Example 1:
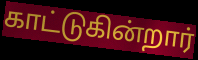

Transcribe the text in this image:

காட்டுகின்றார்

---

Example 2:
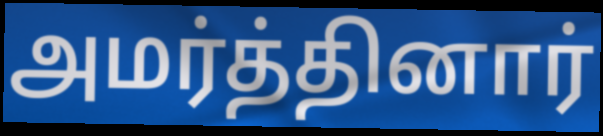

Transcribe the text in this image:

அமர்த்தினார்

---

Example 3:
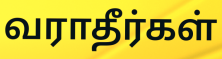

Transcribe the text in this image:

வராதீர்கள்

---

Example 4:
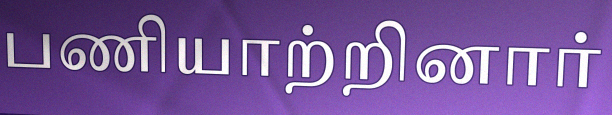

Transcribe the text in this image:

பணியாற்றினார்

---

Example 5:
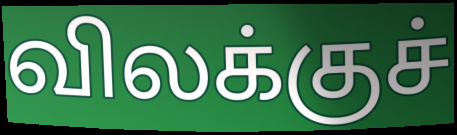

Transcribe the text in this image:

விலக்குச்